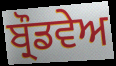
ਬ੍ਰੌਡਵੇਅ